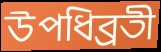
উপধিব্রতী